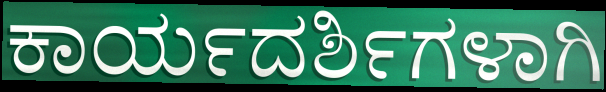
ಕಾರ್ಯದರ್ಶಿಗಳಾಗಿ